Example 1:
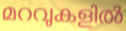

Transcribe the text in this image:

മറവുകളിൽ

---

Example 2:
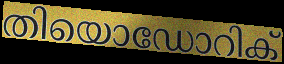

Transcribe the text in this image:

തിയൊഡോറിക്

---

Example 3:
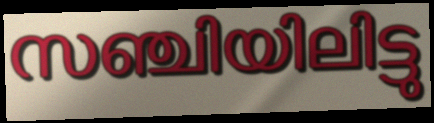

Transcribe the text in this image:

സഞ്ചിയിലിട്ടു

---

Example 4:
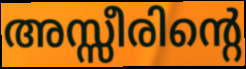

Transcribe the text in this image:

അസ്സീരിന്റെ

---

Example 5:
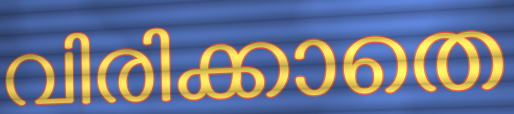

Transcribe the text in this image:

വിരിക്കാതെ